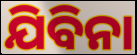
ଯିବିନା